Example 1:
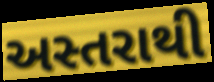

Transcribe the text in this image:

અસ્તરાથી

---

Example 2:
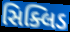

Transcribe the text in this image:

સિક્લિડ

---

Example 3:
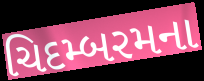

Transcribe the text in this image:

ચિદમ્બરમના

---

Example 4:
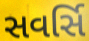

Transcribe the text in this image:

સવર્સિ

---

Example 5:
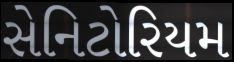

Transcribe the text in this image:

સેનિટોરિયમ